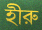
হীরু